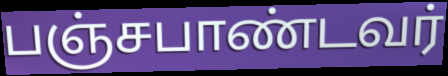
பஞ்சபாண்டவர்